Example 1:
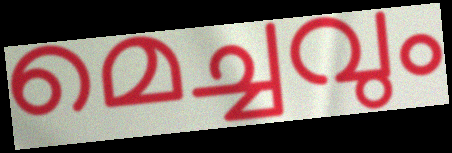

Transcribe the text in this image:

മെച്ചവും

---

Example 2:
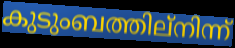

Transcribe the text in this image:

കുടുംബത്തില്നിന്ന്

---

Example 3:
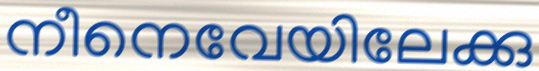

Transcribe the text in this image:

നീനെവേയിലേക്കു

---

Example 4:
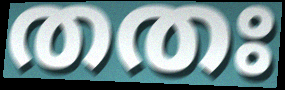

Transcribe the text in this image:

തതഃ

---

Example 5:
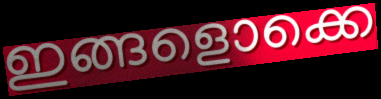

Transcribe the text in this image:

ഇങ്ങളൊക്കെ